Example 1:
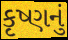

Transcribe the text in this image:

કૃષ્ણનું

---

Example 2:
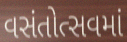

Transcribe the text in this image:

વસંતોત્સવમાં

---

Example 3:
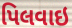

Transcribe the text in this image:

પિલવાઇ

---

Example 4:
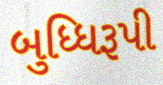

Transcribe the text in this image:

બુધ્ધિરૂપી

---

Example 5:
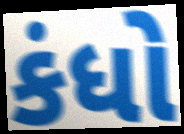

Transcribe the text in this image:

કંધો